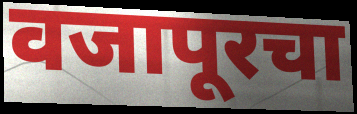
वजापूरचा